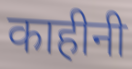
काहीनी